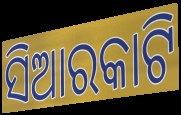
ସିଆରକାଟି